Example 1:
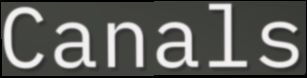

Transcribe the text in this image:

Canals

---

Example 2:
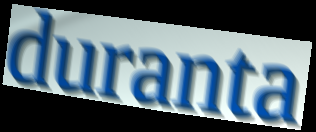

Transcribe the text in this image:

duranta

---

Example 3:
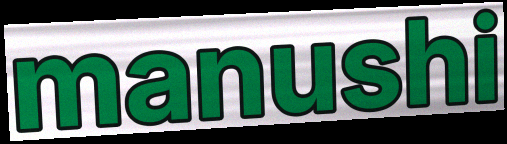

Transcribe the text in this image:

manushi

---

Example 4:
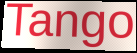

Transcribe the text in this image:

Tango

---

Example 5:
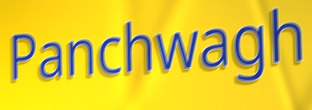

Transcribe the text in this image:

Panchwagh